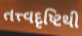
તત્ત્વદૃષ્ટિથી